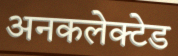
अनकलेक्टेड